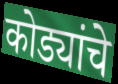
कोड्यांचे